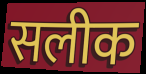
सलीक